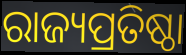
ରାଜ୍ୟପ୍ରତିଷ୍ଠା